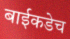
बाईकडेच